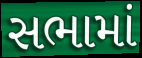
સભામાં